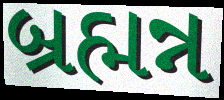
બ્રહ્મન્ન